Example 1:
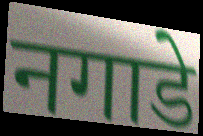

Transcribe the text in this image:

नगाडे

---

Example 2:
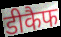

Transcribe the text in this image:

डीकैफ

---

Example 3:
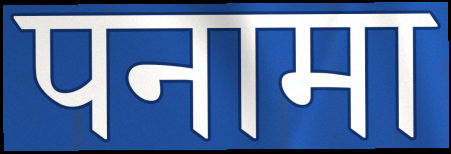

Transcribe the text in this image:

पनामा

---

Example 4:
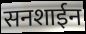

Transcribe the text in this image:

सनशाईन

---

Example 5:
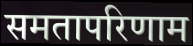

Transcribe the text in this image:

समतापरिणाम